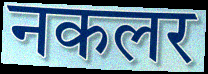
नकलर